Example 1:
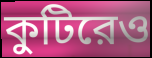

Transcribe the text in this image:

কুটিরেও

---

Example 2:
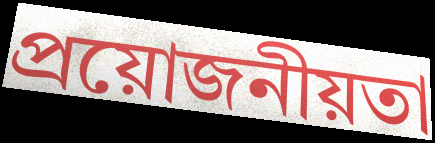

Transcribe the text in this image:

প্রয়োজনীয়তা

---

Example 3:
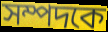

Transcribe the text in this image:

সম্পদকে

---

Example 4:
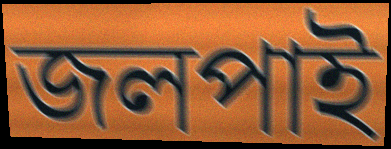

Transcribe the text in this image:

জলপাই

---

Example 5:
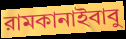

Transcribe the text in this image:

রামকানাইবাবু